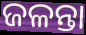
ଜଳନ୍ତା